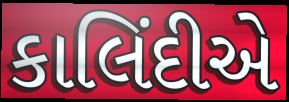
કાલિંદીએ